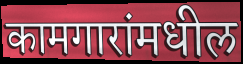
कामगारांमधील